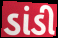
ડાંડી